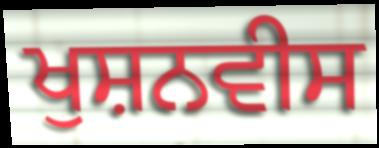
ਖੁਸ਼ਨਵੀਸ